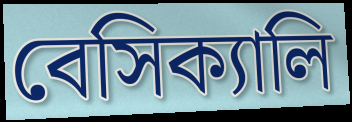
বেসিক্যালি